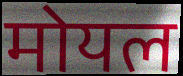
मोयल